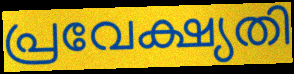
പ്രവേക്ഷ്യതി